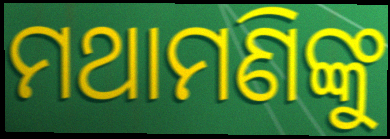
ମଥାମଣିଙ୍କୁ